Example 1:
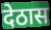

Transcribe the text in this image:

देठास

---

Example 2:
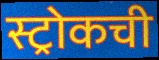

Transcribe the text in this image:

स्ट्रोकची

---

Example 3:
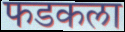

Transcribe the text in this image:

फडकला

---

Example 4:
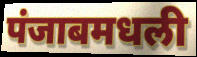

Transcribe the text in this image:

पंजाबमधली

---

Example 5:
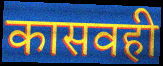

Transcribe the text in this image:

कासवही